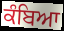
ਕੰਬਿਆ